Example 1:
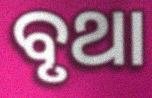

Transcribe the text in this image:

ବୃଥା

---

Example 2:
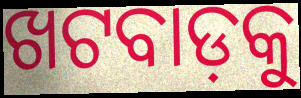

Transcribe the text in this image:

ଖଟବାଡ଼କୁ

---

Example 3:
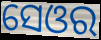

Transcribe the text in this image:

ସେଓର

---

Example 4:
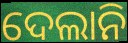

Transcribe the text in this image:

ଦେଲାନି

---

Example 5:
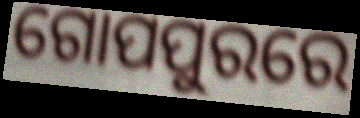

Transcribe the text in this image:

ଗୋପପୁରରେ